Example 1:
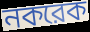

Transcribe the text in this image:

নকরেক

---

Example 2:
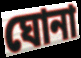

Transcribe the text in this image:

ঘোনা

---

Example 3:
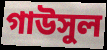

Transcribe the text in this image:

গাউসুল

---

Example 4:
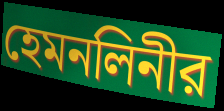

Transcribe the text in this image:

হেমনলিনীর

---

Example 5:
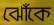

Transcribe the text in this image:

ঝোঁকে